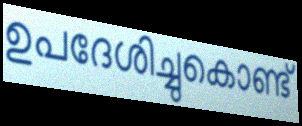
ഉപദേശിച്ചുകൊണ്ട്